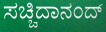
ಸಚ್ಚಿದಾನಂದ್